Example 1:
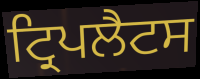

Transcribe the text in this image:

ਟ੍ਰਿਪਲੈਟਸ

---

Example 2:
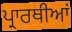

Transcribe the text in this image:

ਪ੍ਰਾਰਥੀਆਂ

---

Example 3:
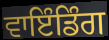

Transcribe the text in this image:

ਵਾਇੰਡਿੰਗ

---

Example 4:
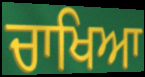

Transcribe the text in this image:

ਚਾਖਿਆ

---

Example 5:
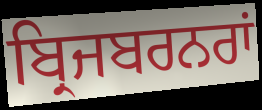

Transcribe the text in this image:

ਬ੍ਰਿਜਬਰਨਰਾਂ